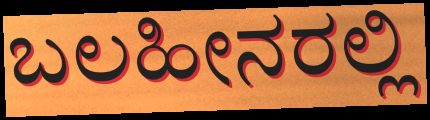
ಬಲಹೀನರಲ್ಲಿ